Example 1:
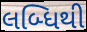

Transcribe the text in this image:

લબ્ધિથી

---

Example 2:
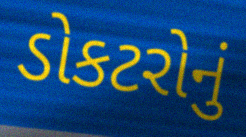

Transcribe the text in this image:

ડોકટરોનું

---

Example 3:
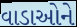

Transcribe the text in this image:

વાડાઓને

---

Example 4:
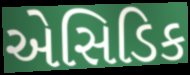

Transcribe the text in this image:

એસિડિક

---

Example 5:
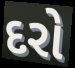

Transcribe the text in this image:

દરો